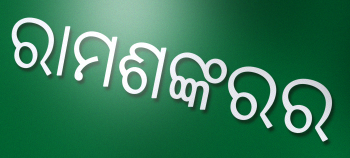
ରାମଶଙ୍କରର